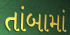
તાંબામાં